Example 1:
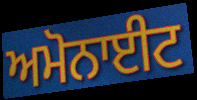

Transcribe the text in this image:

ਅਮੋਨਾਈਟ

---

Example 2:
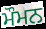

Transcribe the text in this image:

ਮੌਮਨ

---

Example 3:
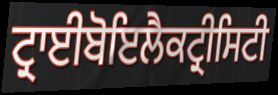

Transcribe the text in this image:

ਟ੍ਰਾਈਬੋਇਲੈਕਟ੍ਰੀਸਿਟੀ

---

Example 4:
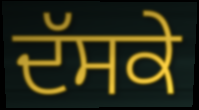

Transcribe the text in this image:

ਦੱਸਕੇ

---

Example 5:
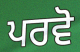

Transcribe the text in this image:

ਪਰਵੋ